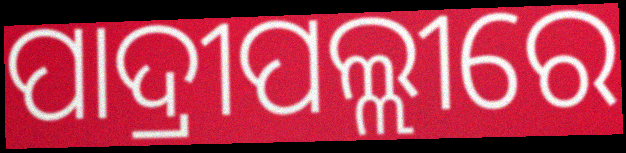
ପାଦ୍ରୀପଲ୍ଲୀରେ